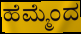
ಹೆಮ್ಮೆಂದ